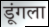
डूंगला